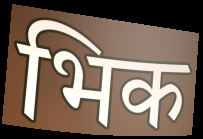
भिक